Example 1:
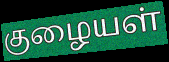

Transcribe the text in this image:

குழையள்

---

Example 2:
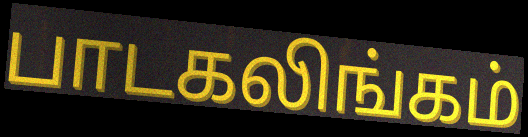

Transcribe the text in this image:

பாடகலிங்கம்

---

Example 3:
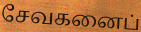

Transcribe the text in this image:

சேவகனைப்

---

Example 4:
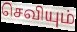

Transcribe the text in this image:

செவியும்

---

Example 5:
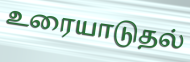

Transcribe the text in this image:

உரையாடுதல்